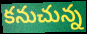
కనుచున్న